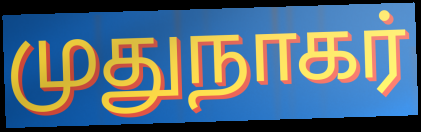
முதுநாகர்